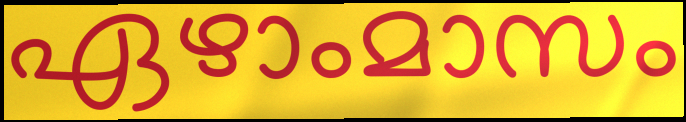
ഏഴാംമാസം